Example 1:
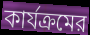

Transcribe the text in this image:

কার্যক্রমের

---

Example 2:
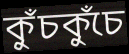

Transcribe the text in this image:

কুঁচকুঁচে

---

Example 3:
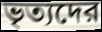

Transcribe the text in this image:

ভৃত্যদের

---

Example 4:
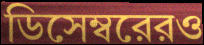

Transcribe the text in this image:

ডিসেম্বরেরও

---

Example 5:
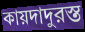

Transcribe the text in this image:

কায়দাদুরস্ত